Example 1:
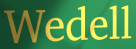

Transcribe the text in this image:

Wedell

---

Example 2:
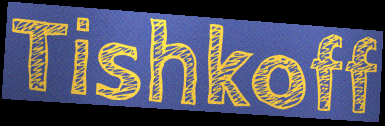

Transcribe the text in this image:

Tishkoff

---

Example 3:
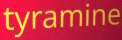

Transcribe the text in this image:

tyramine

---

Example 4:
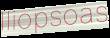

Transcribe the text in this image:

Iliopsoas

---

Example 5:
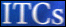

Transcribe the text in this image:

ITCs